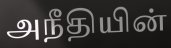
அநீதியின்